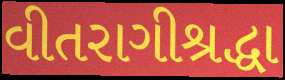
વીતરાગીશ્રદ્ધા